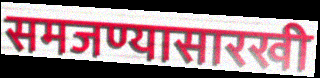
समजण्यासारखी